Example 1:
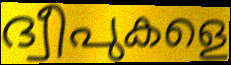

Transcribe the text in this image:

ദ്വീപുകളെ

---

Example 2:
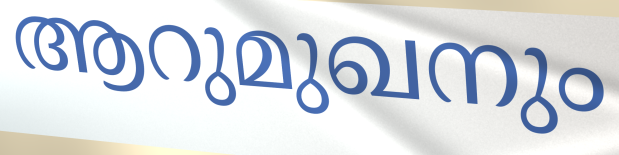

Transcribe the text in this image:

ആറുമുഖനും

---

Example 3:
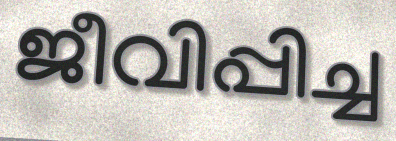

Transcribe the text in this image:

ജീവിപ്പിച്ച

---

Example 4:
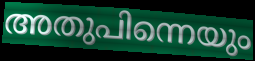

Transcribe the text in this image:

അതുപിന്നെയും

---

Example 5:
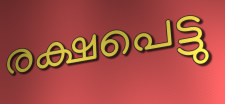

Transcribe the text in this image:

രക്ഷപെട്ടു